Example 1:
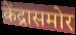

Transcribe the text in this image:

केंद्रासमोर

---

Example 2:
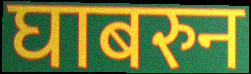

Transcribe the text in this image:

घाबरुन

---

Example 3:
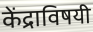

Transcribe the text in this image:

केंद्राविषयी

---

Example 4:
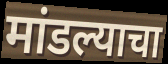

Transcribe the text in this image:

मांडल्याचा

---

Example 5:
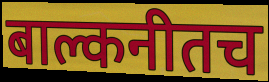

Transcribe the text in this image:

बाल्कनीतच